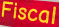
Fiscal